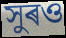
সুৰও